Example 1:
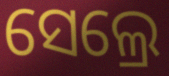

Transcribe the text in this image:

ସେଲ୍ରେ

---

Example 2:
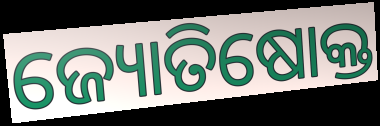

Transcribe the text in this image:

ଜ୍ୟୋତିଷୋକ୍ତ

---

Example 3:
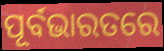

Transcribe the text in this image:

ପୂର୍ବଭାରତରେ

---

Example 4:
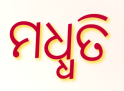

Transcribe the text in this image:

ମଧ୍ଧତି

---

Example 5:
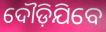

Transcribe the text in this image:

ଦୌଡ଼ିଯିବେ